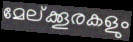
മേല്ക്കൂരകളും